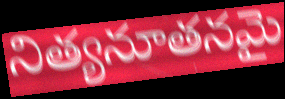
నిత్యనూతనమై